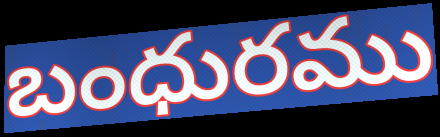
బంధురము